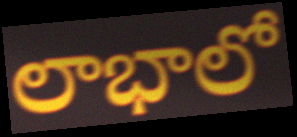
లాభాలో